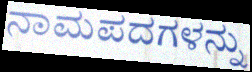
ನಾಮಪದಗಳನ್ನು